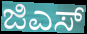
ಜಿಎಸ್